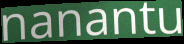
nanantu